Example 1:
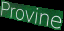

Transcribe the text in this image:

Provine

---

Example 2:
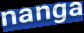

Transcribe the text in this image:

nanga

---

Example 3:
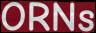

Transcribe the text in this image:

ORNs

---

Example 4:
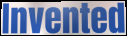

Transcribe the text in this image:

Invented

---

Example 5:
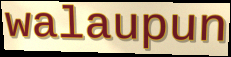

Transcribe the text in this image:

walaupun